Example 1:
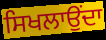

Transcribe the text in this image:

ਸਿਖਲਾਉਂਦਾ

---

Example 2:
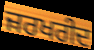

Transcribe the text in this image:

ਜ਼ਰਖਰੀਦ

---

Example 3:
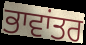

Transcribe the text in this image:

ਭਾਵਾਂਤਰ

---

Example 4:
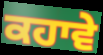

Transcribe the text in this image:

ਕਹਾਵੇ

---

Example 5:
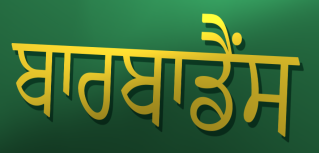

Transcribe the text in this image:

ਬਾਰਬਾਡੈਂਸ